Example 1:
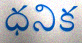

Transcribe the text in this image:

ధనిక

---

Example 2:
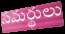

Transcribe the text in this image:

సమర్థులు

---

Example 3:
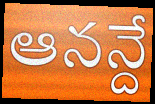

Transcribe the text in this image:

ఆనన్దే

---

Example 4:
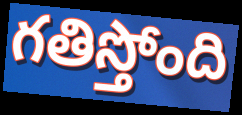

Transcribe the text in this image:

గతిస్తోంది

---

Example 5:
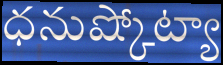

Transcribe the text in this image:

ధనుష్కోట్యా